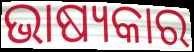
ଭାଷ୍ୟକାର